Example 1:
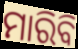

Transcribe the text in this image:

ମାରିବି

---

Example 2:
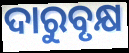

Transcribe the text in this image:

ଦାରୁବୃକ୍ଷ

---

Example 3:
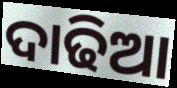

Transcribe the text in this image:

ଦାଢିଆ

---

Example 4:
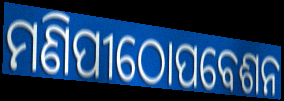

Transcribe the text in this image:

ମଣିପୀଠୋପବେଶନ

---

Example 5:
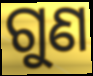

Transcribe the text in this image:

ଗୁଣ